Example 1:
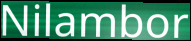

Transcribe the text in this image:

Nilambor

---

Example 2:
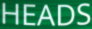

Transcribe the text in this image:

HEADS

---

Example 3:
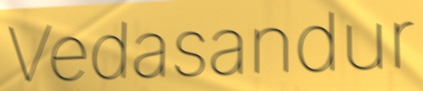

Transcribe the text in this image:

Vedasandur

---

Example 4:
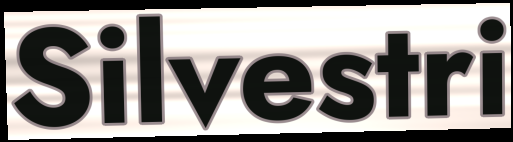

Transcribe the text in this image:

Silvestri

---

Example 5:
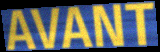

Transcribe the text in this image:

AVANT